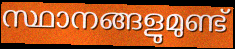
സ്ഥാനങ്ങളുമുണ്ട്